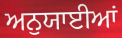
ਅਨੁਯਾਈਆਂ